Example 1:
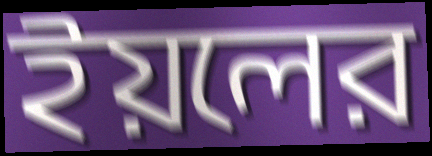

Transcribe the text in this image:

ইয়লের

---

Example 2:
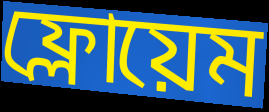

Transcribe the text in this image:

ফ্লোয়েম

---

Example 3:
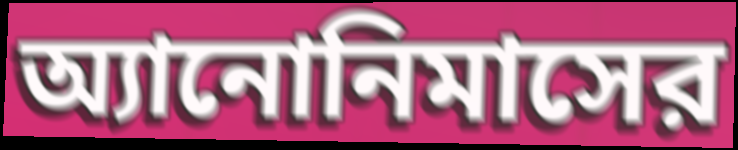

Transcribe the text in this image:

অ্যানোনিমাসের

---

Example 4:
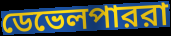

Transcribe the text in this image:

ডেভেলপাররা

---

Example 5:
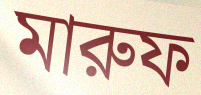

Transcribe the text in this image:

মারুফ